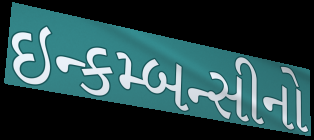
ઇન્કમ્બન્સીનો